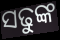
ସଢୁଙ୍କ